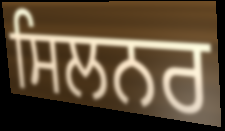
ਸਿਲਨਰ